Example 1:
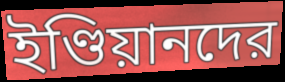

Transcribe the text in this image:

ইণ্ডিয়ানদের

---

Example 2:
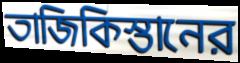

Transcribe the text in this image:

তাজিকিস্তানের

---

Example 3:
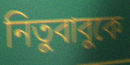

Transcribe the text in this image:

নিতুবাবুকে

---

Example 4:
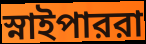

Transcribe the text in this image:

স্নাইপাররা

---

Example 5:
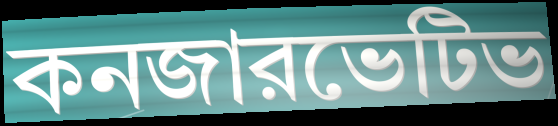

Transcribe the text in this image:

কনজারভেটিভ